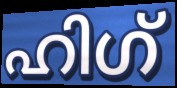
ഹിഗ്